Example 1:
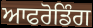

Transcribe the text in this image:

ਆਫਰੋਡਿੰਗ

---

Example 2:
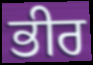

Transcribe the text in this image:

ਭੀਰ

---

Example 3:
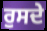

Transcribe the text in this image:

ਰੁਸਦੇ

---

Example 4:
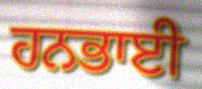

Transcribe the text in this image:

ਹਨਭਾਈ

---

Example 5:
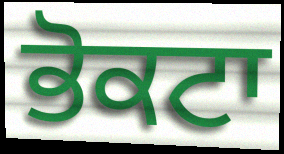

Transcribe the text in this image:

ਭੋਕਟਾ